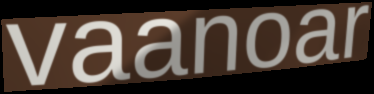
vaanoar